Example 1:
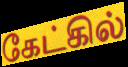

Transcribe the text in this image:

கேட்கில்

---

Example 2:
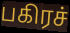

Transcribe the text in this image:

பகிரச்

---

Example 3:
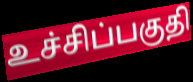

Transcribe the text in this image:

உச்சிப்பகுதி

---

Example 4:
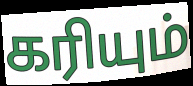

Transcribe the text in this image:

கரியும்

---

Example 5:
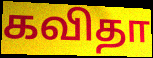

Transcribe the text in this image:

கவிதா